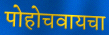
पोहोचवायचा